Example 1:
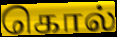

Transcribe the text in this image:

கொல்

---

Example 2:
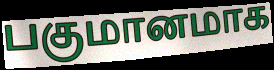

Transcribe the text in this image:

பகுமானமாக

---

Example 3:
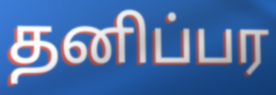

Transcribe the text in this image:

தனிப்பர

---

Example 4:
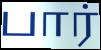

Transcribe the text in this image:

பார்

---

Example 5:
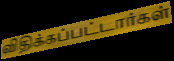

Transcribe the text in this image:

விதிக்கப்பட்டார்கள்